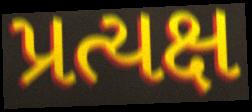
પ્રત્યક્ષ